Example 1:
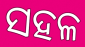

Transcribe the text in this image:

ସହଳ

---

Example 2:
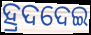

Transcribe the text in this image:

ହ୍ରଦଦେଇ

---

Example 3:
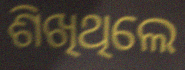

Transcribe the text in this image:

ଶିଖିଥିଲେ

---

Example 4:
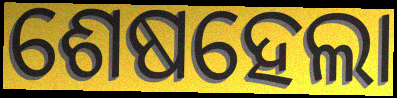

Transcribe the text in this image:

ଶେଷହେଲା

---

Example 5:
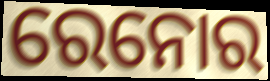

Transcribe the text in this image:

ରେନୋର